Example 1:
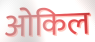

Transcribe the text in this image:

ओकिल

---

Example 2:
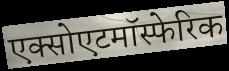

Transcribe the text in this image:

एक्सोएटमॉस्फेरिक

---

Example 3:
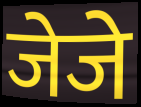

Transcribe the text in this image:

जेजे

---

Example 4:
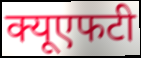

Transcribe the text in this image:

क्यूएफटी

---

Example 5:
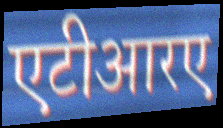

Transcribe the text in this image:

एटीआरए